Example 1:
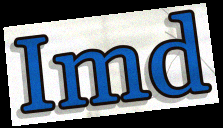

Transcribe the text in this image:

Imd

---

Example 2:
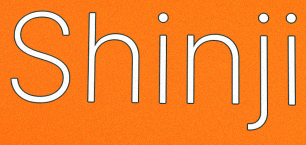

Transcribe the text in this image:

Shinji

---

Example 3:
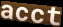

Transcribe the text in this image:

acct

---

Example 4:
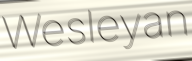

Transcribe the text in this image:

Wesleyan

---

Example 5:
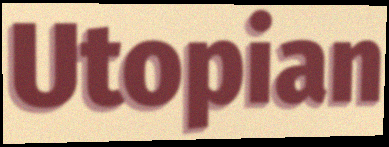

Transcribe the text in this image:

Utopian